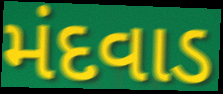
મંદવાડ